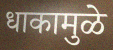
धाकामुळे